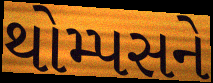
થોમ્પસને